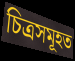
চিত্ৰসমূহত